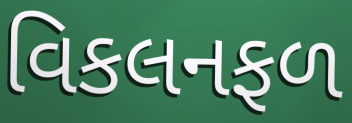
વિકલનફળ